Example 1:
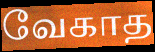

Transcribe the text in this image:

வேகாத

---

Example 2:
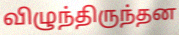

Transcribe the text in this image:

விழுந்திருந்தன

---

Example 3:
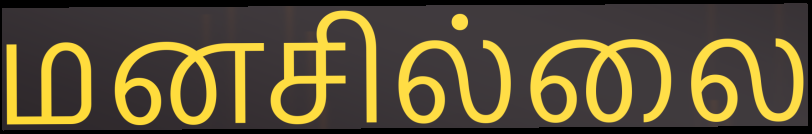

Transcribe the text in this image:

மனசில்லை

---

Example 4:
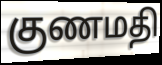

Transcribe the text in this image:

குணமதி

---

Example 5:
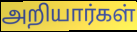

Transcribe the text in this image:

அறியார்கள்